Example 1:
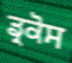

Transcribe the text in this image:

ਡ੍ਰਕੋਸ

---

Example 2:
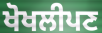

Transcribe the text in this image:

ਖੋਖਲੀਪਣ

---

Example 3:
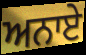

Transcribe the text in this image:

ਅਨਾਏ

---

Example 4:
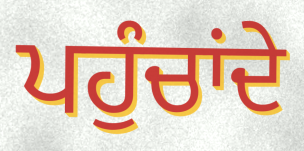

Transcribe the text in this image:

ਪਹੁੰਚਾਂਦੇ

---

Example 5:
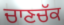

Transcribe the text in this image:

ਚਾਣਚੱਕ